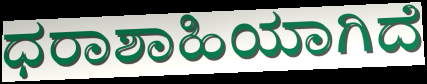
ಧರಾಶಾಹಿಯಾಗಿದೆ